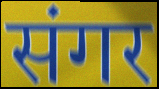
संगर